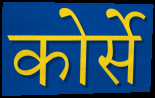
कोर्से